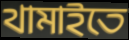
থামাইতে